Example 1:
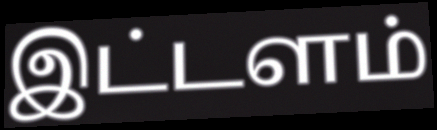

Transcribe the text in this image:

இட்டளம்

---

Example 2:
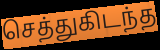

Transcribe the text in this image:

செத்துகிடந்த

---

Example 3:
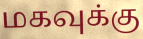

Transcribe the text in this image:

மகவுக்கு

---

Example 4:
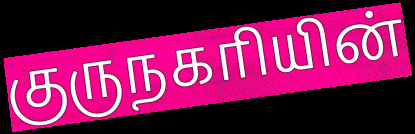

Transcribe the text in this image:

குருநகரியின்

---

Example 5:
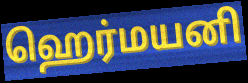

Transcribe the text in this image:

ஹெர்மயனி